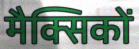
मैक्सिकों